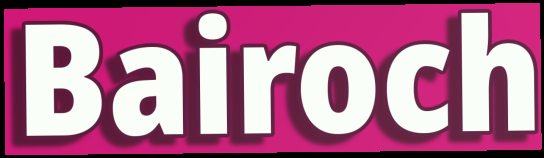
Bairoch